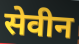
सेवीन